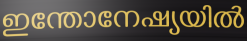
ഇന്തോനേഷ്യയിൽ